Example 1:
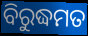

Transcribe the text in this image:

ବିରୁଦ୍ଧମତ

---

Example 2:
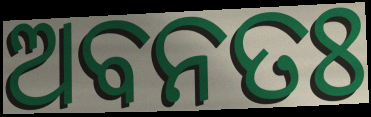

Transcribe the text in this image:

ଅବନତଃ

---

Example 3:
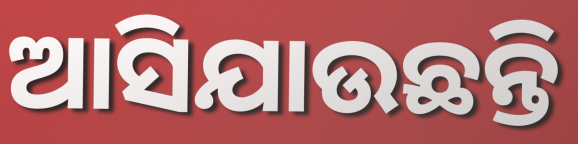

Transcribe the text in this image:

ଆସିଯାଉଛନ୍ତି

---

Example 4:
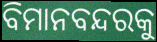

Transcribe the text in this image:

ବିମାନବନ୍ଦରକୁ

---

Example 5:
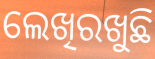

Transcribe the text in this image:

ଲେଖିରଖୁଛି